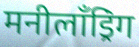
मनीलॉंड्रिंग